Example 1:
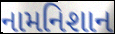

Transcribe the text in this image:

નામનિશાન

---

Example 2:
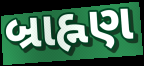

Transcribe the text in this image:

બ્રાહ્નણ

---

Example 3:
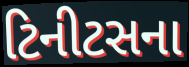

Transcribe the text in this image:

ટિનીટસના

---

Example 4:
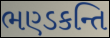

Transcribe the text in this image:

ભણ્ડકન્તિ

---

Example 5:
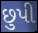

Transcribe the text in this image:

છુપી